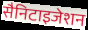
सैनिटाइजेशन